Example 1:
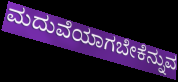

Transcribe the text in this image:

ಮದುವೆಯಾಗಬೇಕೆನ್ನುವ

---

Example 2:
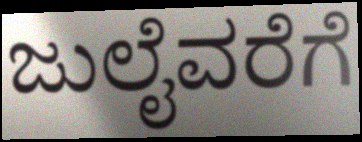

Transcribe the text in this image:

ಜುಲೈವರೆಗೆ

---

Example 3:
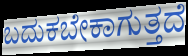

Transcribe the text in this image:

ಬದುಕಬೇಕಾಗುತ್ತದೆ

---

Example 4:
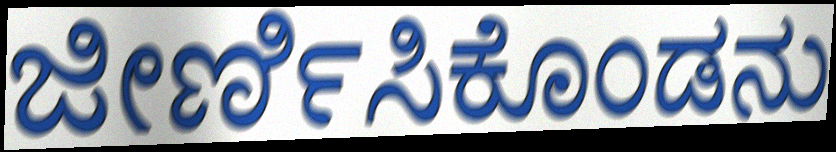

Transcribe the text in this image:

ಜೀರ್ಣಿಸಿಕೊಂಡನು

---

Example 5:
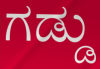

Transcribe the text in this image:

ಗಡ್ಡು